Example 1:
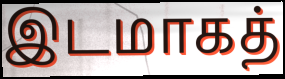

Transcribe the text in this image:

இடமாகத்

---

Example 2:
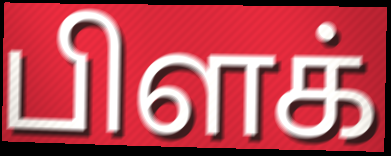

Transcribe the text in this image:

பிளக்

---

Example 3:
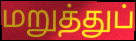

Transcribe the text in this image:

மறுத்துப்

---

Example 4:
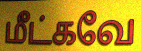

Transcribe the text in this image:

மீட்கவே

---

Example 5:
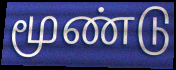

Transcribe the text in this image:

மூண்டு